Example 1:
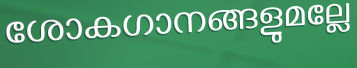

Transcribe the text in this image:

ശോകഗാനങ്ങളുമല്ലേ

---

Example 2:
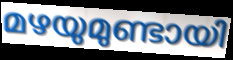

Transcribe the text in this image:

മഴയുമുണ്ടായി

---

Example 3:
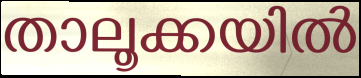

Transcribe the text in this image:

താലൂക്കയിൽ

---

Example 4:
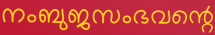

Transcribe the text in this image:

നംബുജസംഭവന്റെ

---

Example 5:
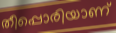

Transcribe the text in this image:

തീപ്പൊരിയാണ്